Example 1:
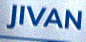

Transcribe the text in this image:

JIVAN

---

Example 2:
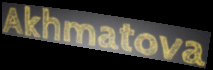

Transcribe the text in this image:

Akhmatova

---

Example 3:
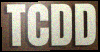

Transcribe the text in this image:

TCDD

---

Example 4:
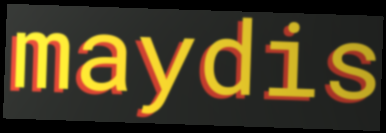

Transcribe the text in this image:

maydis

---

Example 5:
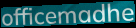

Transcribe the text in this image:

officemadhe